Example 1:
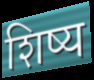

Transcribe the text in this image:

शिष्य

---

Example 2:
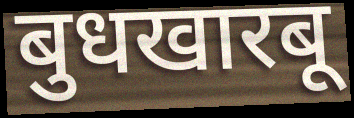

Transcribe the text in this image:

बुधखारबू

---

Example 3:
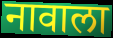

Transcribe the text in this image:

नावाला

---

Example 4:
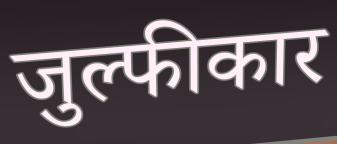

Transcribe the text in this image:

जुल्फीकार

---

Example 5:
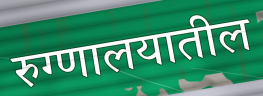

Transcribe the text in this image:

रुग्णालयातील